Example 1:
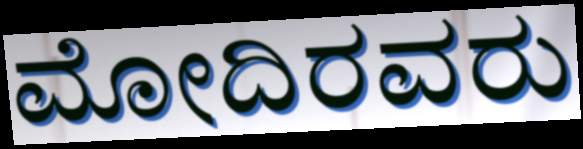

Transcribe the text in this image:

ಮೋದಿರವರು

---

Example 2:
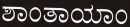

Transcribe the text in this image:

ಶಾಂತಾಯಾಂ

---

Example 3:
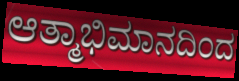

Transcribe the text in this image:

ಆತ್ಮಾಭಿಮಾನದಿಂದ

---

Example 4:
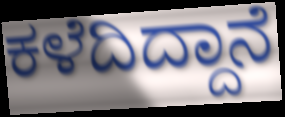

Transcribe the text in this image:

ಕಳೆದಿದ್ದಾನೆ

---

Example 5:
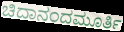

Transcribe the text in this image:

ಚಿದಾನಂದಮೂರ್ತಿ